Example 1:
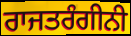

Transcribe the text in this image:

ਰਾਜਤਰੰਗੀਨੀ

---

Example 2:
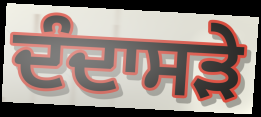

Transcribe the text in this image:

ਦੰਦਾਸੜੇ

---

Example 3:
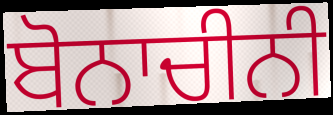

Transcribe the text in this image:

ਬੋਨਾਚੀਨੀ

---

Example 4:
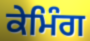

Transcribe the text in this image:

ਕੇਮਿੰਗ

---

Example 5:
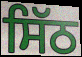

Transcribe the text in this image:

ਸਿੱਠ